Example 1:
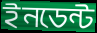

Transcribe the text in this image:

ইনডেন্ট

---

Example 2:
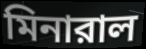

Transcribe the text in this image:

মিনারাল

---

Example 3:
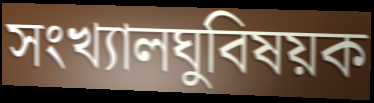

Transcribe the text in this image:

সংখ্যালঘুবিষয়ক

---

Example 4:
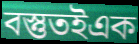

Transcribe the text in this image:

বস্তুতইএক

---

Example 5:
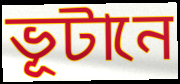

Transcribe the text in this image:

ভূটানে